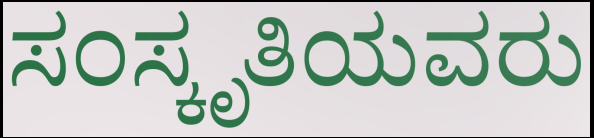
ಸಂಸ್ಕೃತಿಯವರು